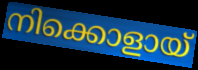
നിക്കൊളായ്